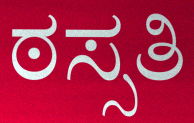
ಠಸ್ಸತಿ